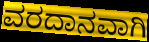
ವರದಾನವಾಗಿ